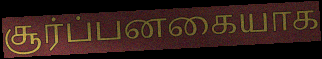
சூர்ப்பனகையாக